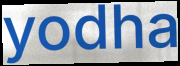
yodha